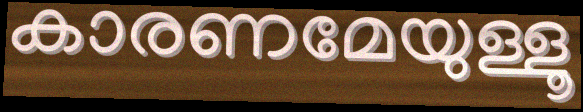
കാരണമേയുള്ളൂ